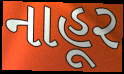
નાહૂર